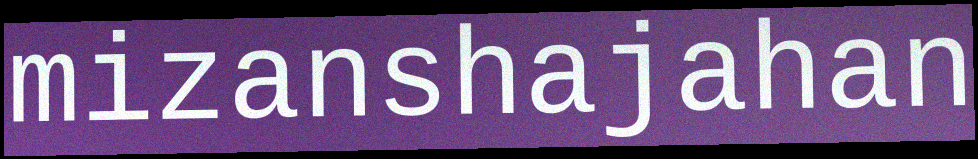
mizanshajahan